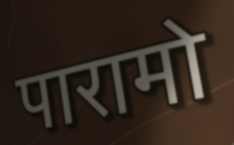
पारामो